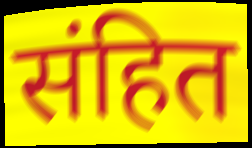
संहित